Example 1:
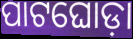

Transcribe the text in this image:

ପାଟଘୋଡ଼ା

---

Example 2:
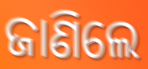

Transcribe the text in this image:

ଜାଣିଲେ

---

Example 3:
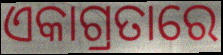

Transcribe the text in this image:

ଏକାଗ୍ରତାରେ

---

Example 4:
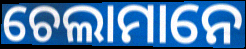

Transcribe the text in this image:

ଚେଲାମାନେ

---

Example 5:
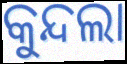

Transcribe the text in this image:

କୁନ୍ଦଲା